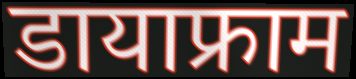
डायाफ्राम